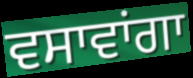
ਵਸਾਵਾਂਗਾ